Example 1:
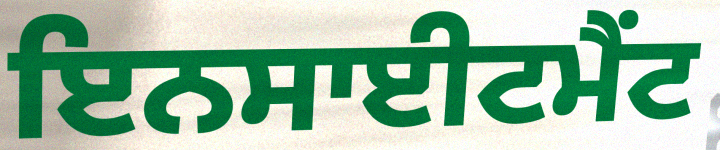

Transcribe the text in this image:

ਇਨਸਾਈਟਮੈਂਟ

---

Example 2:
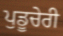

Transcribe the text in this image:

ਪੁਡੂਚੇਰੀ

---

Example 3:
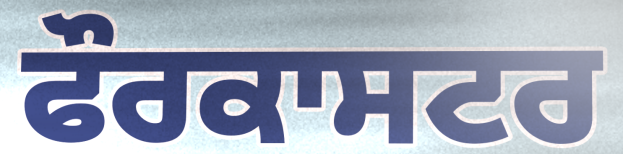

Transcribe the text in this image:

ਫੌਰਕਾਸਟਰ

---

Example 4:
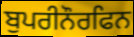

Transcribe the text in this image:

ਬੁਪਰੀਨੌਰਫਿਨ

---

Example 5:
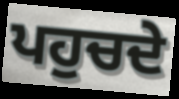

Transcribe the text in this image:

ਪਹੁਚਦੇ